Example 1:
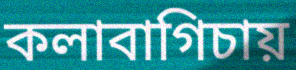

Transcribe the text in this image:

কলাবাগিচায়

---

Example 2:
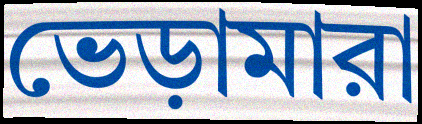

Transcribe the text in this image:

ভেড়ামারা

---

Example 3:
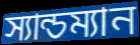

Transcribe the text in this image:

স্যান্ডম্যান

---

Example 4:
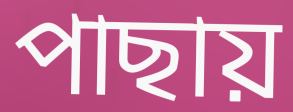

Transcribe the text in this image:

পাছায়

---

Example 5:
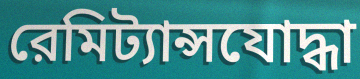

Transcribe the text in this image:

রেমিট্যান্সযোদ্ধা